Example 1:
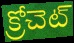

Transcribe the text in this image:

క్రోచెట్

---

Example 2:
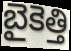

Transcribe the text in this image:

బైకెత్తి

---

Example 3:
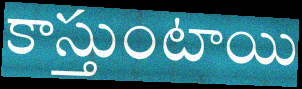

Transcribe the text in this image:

కాస్తుంటాయి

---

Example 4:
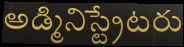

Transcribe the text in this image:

అడ్మినిస్ట్రేటరు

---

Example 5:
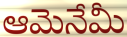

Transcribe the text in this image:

ఆమెనేమీ